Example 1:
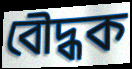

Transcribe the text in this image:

বৌদ্ধক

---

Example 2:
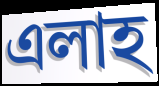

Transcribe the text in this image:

এলাহ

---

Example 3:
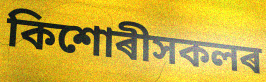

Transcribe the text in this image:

কিশোৰীসকলৰ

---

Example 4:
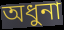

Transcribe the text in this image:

অধুনা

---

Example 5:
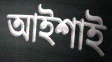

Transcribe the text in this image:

আইশাই